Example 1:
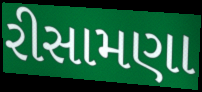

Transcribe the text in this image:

રીસામણા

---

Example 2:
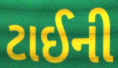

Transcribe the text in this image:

ટાઈની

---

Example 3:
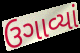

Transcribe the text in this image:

ઉગાવ્યાં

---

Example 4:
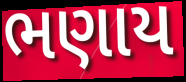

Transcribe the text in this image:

ભણાય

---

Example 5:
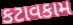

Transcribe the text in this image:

કટાવકામ